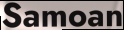
Samoan